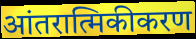
आंतरात्मिकीकरण